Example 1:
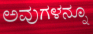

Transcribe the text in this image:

ಅವುಗಳನ್ನೂ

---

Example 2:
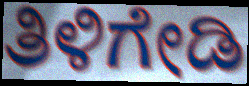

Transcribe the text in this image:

ತಿಳಿಗೇಡಿ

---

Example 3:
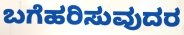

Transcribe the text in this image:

ಬಗೆಹರಿಸುವುದರ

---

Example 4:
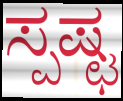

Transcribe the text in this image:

ಸ್ಪಷ್ಟ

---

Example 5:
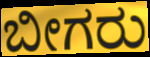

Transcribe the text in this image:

ಬೀಗರು